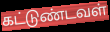
கட்டுண்டவள்